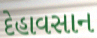
દેહાવસાન